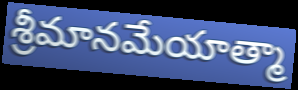
శ్రీమానమేయాత్మా